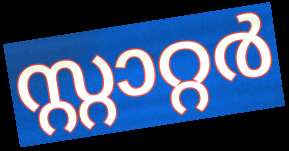
സ്റ്റാറ്റർ